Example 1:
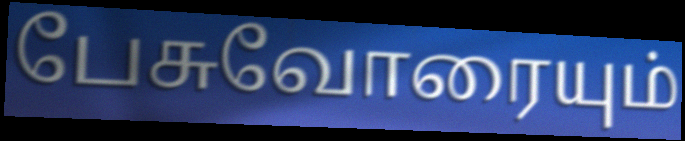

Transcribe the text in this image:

பேசுவோரையும்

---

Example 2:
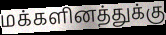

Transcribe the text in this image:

மக்களினத்துக்கு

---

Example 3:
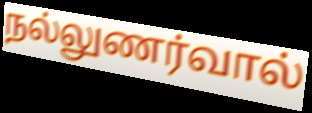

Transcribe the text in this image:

நல்லுணர்வால்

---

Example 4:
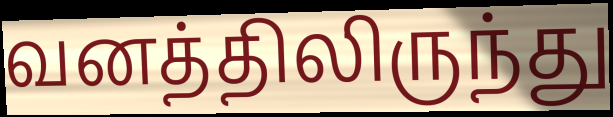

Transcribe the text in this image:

வனத்திலிருந்து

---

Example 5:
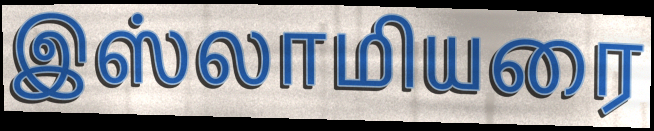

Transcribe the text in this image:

இஸ்லாமியரை